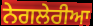
ਨੇਗਲੇਰੀਆ